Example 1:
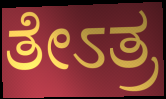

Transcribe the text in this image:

ತೇಽತ್ರ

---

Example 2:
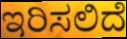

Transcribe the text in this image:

ಇರಿಸಲಿದೆ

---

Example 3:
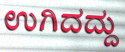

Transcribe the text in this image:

ಉಗಿದದ್ದು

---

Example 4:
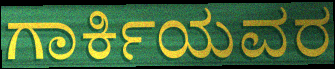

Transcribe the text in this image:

ಗಾರ್ಕಿಯವರ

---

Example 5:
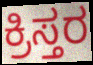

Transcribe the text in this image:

ಕ್ರಿಸ್ತರ